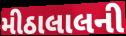
મીઠાલાલની